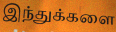
இந்துக்களை